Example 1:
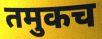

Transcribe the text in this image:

तमुकच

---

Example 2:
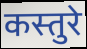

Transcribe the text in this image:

कस्तुरे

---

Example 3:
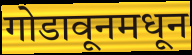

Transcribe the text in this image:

गोडावूनमधून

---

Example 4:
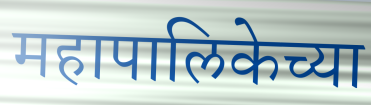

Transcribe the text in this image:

महापालिकेच्या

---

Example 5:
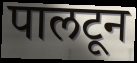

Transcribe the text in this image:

पालटून